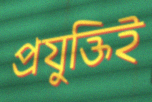
প্রযুক্তিই